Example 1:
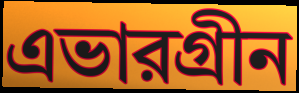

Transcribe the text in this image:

এভারগ্রীন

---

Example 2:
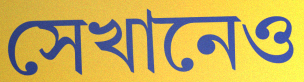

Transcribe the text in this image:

সেখানেও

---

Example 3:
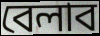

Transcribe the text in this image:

বেলাব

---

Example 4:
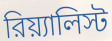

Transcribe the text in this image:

রিয়্যালিস্ট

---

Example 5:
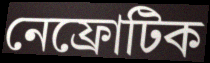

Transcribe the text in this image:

নেফ্রোটিক